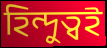
হিন্দুত্বই